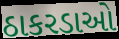
ઠાકરડાઓ